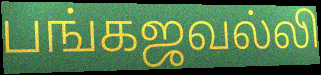
பங்கஜவல்லி